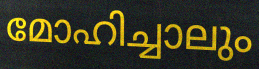
മോഹിച്ചാലും